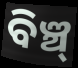
ବିଞ୍ଚ୍